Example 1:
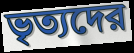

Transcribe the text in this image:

ভৃত্যদের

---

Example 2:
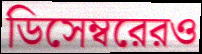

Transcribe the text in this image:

ডিসেম্বরেরও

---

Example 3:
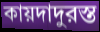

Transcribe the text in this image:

কায়দাদুরস্ত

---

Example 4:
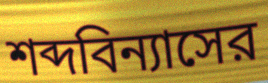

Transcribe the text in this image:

শব্দবিন্যাসের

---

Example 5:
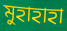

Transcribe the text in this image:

মুহাহাহা